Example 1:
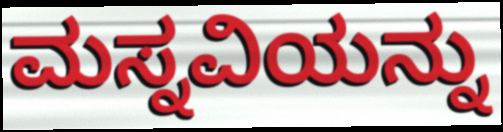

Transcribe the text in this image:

ಮಸ್ನವಿಯನ್ನು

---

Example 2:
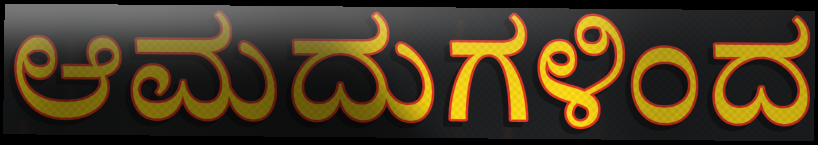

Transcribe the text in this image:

ಆಮದುಗಳಿಂದ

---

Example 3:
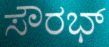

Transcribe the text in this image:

ಸೌರಭ್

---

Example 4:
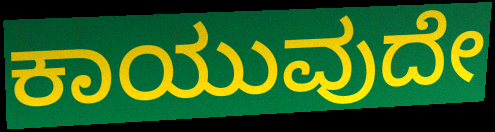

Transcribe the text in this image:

ಕಾಯುವುದೇ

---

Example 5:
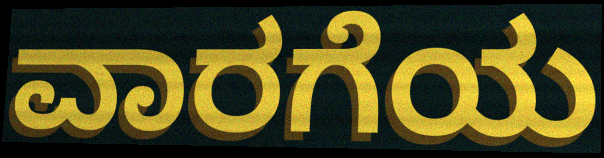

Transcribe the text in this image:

ವಾರಗೆಯ